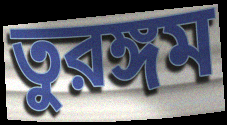
তুরঙ্গম